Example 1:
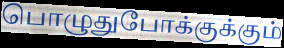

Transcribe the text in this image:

பொழுதுபோக்குக்கும்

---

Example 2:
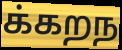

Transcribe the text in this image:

க்கறந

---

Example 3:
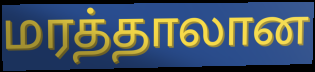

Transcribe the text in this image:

மரத்தாலான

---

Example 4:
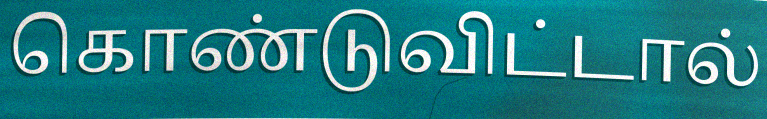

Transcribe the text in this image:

கொண்டுவிட்டால்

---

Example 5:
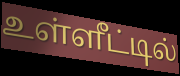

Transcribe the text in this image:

உள்ளீட்டில்